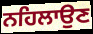
ਨਹਿਲਾਉਣ